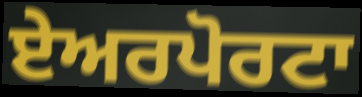
ਏਅਰਪੋਰਟਾ